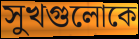
সুখগুলোকে